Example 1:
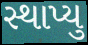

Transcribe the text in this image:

સ્થાપ્યુ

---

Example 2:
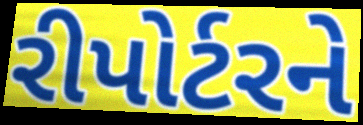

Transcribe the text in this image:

રીપોર્ટરને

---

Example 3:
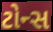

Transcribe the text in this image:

ટોન્સ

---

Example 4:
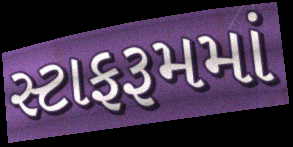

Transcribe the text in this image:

સ્ટાફરૂમમાં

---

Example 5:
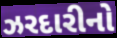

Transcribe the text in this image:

ઝરદારીનો